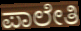
ಪಾಲೇತಿ